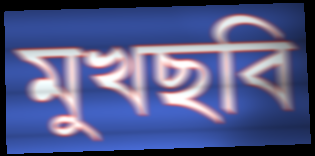
মুখছবি